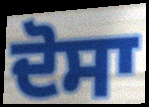
ਦੋਸਾ